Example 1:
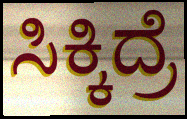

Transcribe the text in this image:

ಸಿಕ್ಕಿದ್ರೆ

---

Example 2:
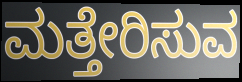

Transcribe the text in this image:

ಮತ್ತೇರಿಸುವ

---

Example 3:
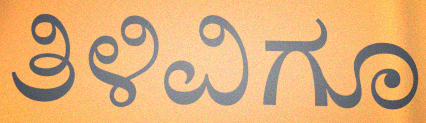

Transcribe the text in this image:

ತಿಳಿವಿಗೂ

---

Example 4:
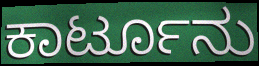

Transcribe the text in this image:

ಕಾರ್ಟೂನು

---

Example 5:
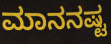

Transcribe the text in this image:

ಮಾನನಷ್ಟ